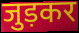
जुड़कर